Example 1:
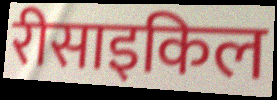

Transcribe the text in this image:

रीसाइकिल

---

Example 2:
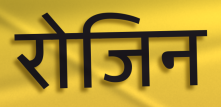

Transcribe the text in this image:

रोजिन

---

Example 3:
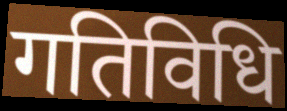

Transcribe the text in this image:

गतिविधि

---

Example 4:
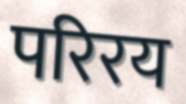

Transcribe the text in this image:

परिरय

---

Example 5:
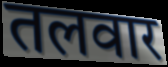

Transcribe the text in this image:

तलवार